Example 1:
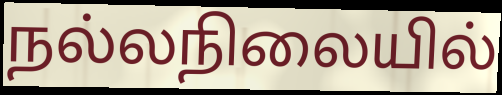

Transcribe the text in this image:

நல்லநிலையில்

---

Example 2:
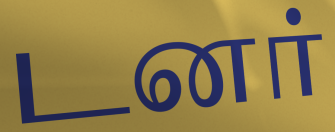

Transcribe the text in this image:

டனர்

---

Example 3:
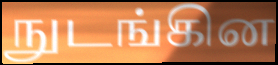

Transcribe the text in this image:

நுடங்கின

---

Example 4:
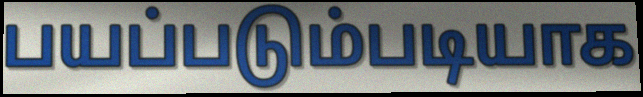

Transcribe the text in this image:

பயப்படும்படியாக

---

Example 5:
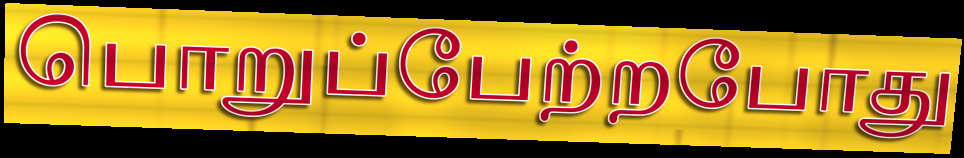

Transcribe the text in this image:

பொறுப்பேற்றபோது